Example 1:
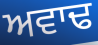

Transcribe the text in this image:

ਅਵਾਢ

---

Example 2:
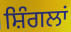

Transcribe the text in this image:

ਸ਼ਿੰਗਲਾਂ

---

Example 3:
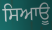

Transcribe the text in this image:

ਸਿਆਊ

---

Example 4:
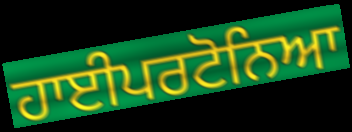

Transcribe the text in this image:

ਹਾਈਪਰਟੋਨਿਆ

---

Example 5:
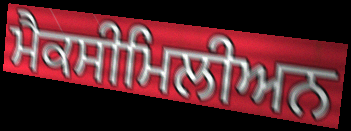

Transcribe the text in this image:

ਮੈਕਸੀਮਿਲੀਅਨ